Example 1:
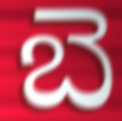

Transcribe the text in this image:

బె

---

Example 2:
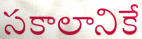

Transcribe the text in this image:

సకాలానికే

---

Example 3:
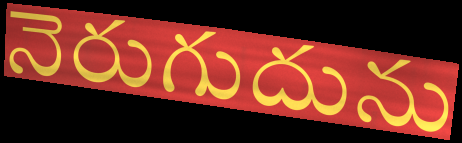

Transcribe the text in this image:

నెరుగుదును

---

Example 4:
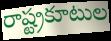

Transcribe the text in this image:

రాష్ట్రకూటుల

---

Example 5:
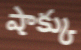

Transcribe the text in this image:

షాక్కు